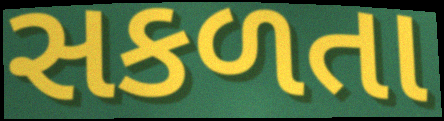
સકળતા